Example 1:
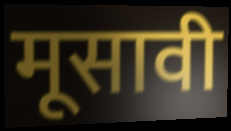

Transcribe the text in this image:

मूसावी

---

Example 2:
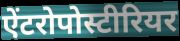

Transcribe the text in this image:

ऐंटरोपोस्टीरियर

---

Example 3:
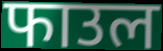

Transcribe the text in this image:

फाउल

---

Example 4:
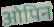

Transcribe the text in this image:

ओपिन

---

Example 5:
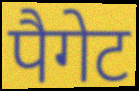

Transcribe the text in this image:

पैगेट